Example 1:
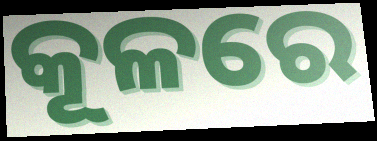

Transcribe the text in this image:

କୂଳରେ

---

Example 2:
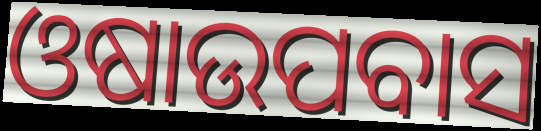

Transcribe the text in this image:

ଓଷାଉପବାସ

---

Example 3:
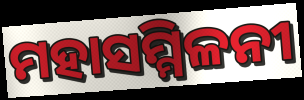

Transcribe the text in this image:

ମହାସମ୍ମିଳନୀ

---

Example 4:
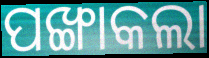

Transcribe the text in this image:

ପଙ୍ଖାକଲା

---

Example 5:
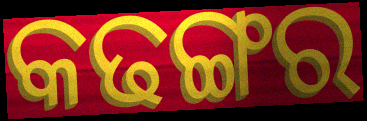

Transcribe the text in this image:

କଢଙ୍ଗର